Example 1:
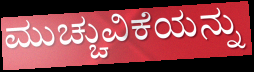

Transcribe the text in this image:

ಮುಚ್ಚುವಿಕೆಯನ್ನು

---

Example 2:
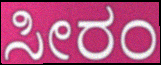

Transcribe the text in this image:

ಸೀರಂ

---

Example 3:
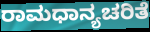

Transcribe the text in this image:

ರಾಮಧಾನ್ಯಚರಿತೆ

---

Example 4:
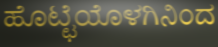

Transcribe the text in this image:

ಹೊಟ್ಟೆಯೊಳಗಿನಿಂದ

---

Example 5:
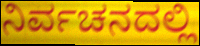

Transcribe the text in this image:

ನಿರ್ವಚನದಲ್ಲಿ